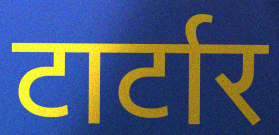
टार्टार